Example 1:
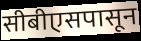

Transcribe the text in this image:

सीबीएसपासून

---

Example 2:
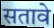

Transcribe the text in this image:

सतावे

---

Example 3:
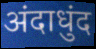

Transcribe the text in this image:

अंदाधुंद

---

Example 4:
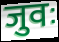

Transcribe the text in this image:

जुवः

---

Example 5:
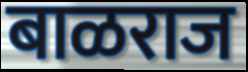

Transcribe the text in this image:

बाळराज